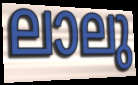
ലാലു